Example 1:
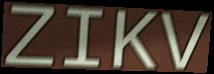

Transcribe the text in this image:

ZIKV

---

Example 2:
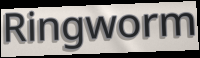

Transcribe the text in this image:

Ringworm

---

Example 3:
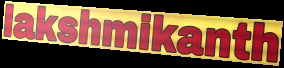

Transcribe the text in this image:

lakshmikanth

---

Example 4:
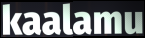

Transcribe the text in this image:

kaalamu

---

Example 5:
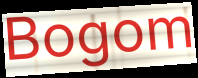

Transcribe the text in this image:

Bogom